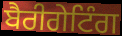
ਬੈਰੀਗੇਟਿੰਗ